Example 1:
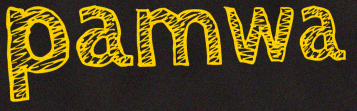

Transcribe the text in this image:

pamwa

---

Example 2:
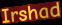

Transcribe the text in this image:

Irshad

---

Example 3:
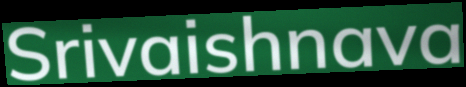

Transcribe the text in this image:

Srivaishnava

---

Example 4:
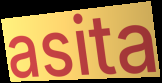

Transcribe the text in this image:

asita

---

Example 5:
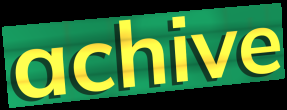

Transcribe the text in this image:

achive